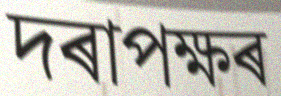
দৰাপক্ষৰ